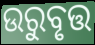
ଉରୁବୃତ୍ତ